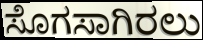
ಸೊಗಸಾಗಿರಲು